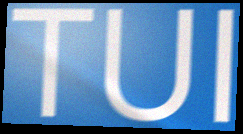
TUI